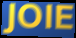
JOIE